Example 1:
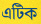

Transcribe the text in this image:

এটিক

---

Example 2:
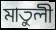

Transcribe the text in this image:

মাতুলী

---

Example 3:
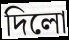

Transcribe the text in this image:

দিলো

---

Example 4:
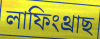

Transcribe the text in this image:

লাফিংথ্ৰাছ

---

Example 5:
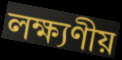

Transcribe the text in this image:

লক্ষ্যণীয়